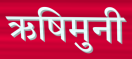
ऋषिमुनी